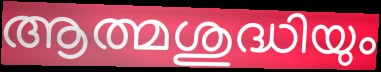
ആത്മശുദ്ധിയും